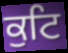
ਕੁਟਿ